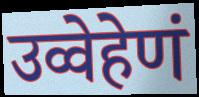
उव्वेहेणं